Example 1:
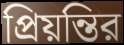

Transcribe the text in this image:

প্রিয়ন্তির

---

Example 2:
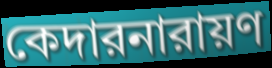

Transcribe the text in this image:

কেদারনারায়ণ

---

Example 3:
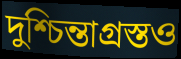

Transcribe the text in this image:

দুশ্চিন্তাগ্রস্তও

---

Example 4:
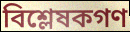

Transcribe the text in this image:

বিশ্লেষকগণ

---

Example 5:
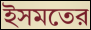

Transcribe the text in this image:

ইসমতের